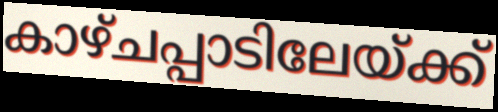
കാഴ്ചപ്പാടിലേയ്ക്ക്